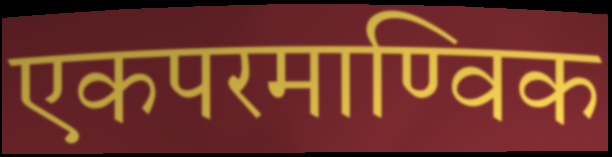
एकपरमाण्विक